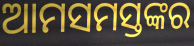
ଆମସମସ୍ତଙ୍କର